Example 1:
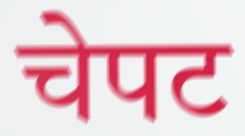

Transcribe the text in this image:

चेपट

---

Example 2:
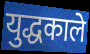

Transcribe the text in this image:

युद्धकाले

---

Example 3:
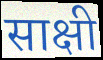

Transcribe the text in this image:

साक्षी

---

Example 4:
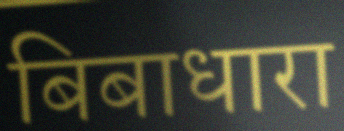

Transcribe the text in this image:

बिबाधारा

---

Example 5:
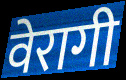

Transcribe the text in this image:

वेरागी